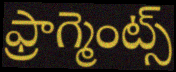
ఫ్రాగ్మెంట్స్